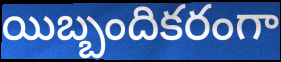
యిబ్బందికరంగా